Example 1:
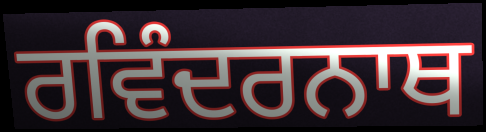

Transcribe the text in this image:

ਰਵਿੰਦਰਨਾਥ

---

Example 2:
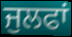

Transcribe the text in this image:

ਜੁਲਫਾਂ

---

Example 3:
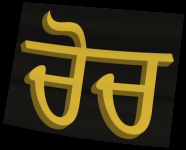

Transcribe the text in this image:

ਚੋਚ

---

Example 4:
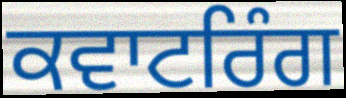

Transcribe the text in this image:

ਕਵਾਟਰਿੰਗ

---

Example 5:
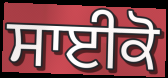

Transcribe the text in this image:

ਸਾਈਕੋ